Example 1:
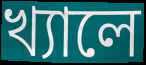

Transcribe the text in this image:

খ্যালে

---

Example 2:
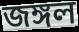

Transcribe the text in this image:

জঙ্গল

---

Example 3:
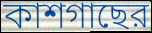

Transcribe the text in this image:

কাশগাছের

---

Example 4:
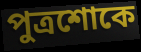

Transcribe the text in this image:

পুত্রশোকে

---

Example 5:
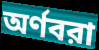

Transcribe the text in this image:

অর্ণবরা